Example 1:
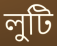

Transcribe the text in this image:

লুটি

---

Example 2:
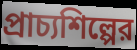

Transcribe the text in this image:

প্রাচ্যশিল্পের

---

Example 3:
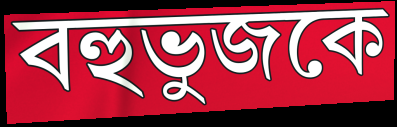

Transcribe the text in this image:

বহুভুজকে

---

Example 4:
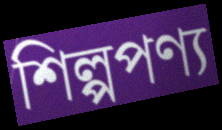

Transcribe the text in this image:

শিল্পপণ্য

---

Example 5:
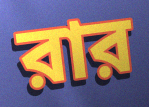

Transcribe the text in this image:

রার